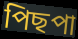
পিছপা